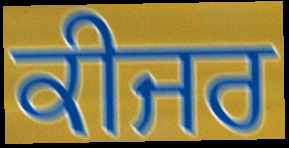
ਕੀਜਰ